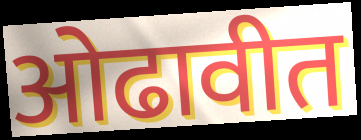
ओढावीत